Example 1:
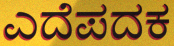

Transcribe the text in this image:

ಎದೆಪದಕ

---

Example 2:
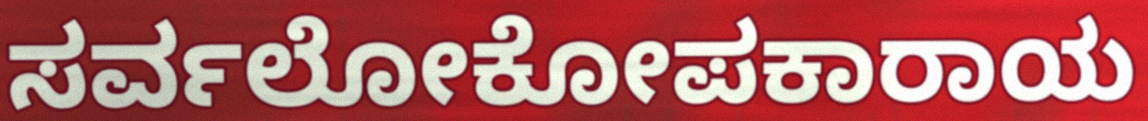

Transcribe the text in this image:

ಸರ್ವಲೋಕೋಪಕಾರಾಯ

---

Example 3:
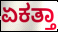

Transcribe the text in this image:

ಏಕತ್ತಾ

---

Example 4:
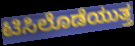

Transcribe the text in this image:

ಟಿಸಿಲೊಡೆಯುತ್ತ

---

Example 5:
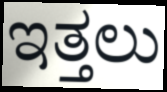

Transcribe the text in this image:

ಇತ್ತಲು